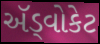
ઍડ્વોકેટ